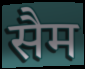
सैम